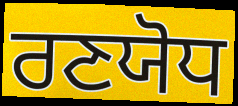
ਰਣਯੋਧ